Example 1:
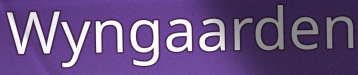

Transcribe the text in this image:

Wyngaarden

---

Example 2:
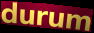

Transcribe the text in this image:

durum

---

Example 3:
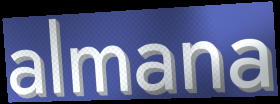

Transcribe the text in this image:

almana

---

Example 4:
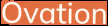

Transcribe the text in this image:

Ovation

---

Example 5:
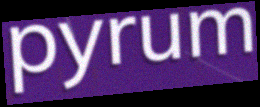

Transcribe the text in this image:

pyrum